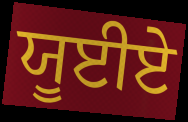
ਯੂਈਏ